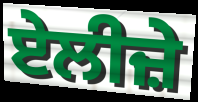
ਏਲੀਜ਼ੇ